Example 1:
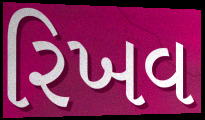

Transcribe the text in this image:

રિખવ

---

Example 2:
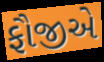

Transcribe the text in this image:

ફૌજીએ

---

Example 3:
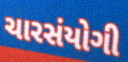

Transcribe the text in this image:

ચારસંયોગી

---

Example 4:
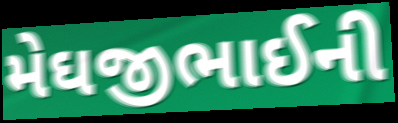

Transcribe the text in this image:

મેઘજીભાઈની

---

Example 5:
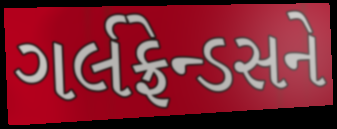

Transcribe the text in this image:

ગર્લફ્રેન્ડસને